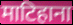
माटिहाना